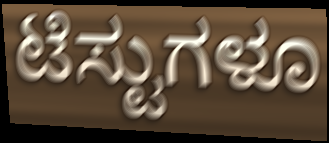
ಟೆಸ್ಟುಗಳೂ